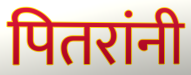
पितरांनी